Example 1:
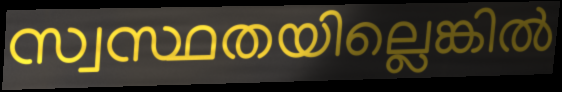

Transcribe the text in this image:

സ്വസ്ഥതയില്ലെങ്കിൽ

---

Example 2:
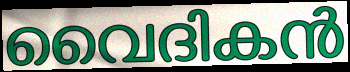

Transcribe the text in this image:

വൈദികൻ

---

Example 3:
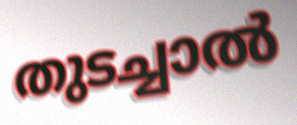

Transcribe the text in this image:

തുടച്ചാൽ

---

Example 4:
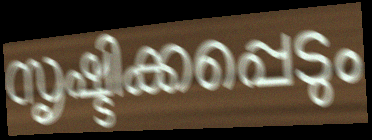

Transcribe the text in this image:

സൃഷ്ടിക്കപ്പെടും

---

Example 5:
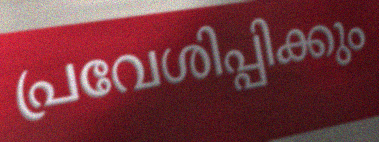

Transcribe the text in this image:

പ്രവേശിപ്പിക്കും